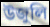
উজুলি